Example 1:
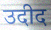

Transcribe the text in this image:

उदीद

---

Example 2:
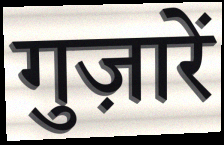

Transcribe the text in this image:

गुज़ारें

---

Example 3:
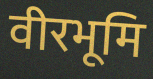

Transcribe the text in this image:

वीरभूमि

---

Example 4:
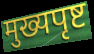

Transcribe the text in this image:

मुख्यपृष्ट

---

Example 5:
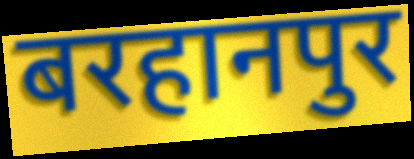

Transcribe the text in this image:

बरहानपुर